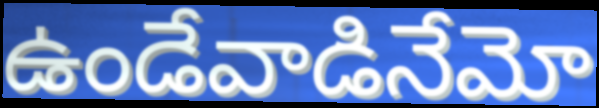
ఉండేవాడినేమో